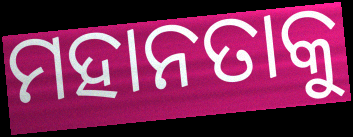
ମହାନତାକୁ